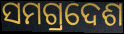
ସମଗ୍ରଦେଶ